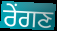
ਰੇਂਗਣ